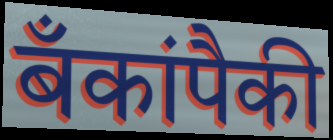
बँकांपैकी